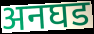
अनघड